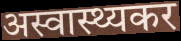
अस्वास्थ्यकर